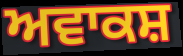
ਅਵਾਕਸ਼